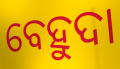
ବେହୁଦା